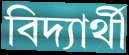
বিদ্যার্থী